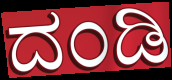
ದಂಡಿ